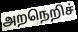
அறநெறிச்